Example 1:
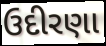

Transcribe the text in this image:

ઉદીરણા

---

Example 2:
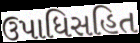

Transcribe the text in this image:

ઉપાધિસહિત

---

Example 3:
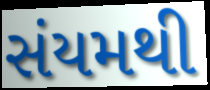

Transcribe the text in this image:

સંયમથી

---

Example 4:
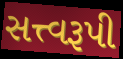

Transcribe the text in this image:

સત્ત્વરૂપી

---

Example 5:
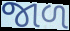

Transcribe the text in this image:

જાળ